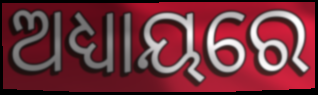
ଅଧ୍ୟାୟରେ